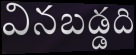
వినబడ్డది